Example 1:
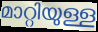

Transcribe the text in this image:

മാറ്റിയുള്ള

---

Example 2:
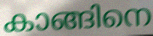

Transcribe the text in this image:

കാങ്ങിനെ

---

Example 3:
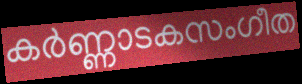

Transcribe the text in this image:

കർണ്ണാടകസംഗീത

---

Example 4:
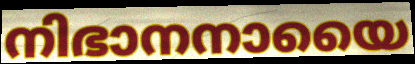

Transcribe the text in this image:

നിഭാനനായൈ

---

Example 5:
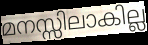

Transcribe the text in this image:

മനസ്സിലാകില്ല